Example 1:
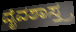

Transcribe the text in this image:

ದೈವಶಾಸ್ತ್ರ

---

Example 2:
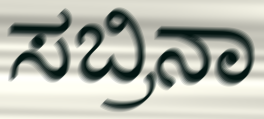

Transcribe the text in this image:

ಸಬ್ರಿನಾ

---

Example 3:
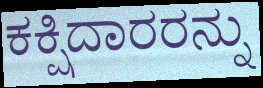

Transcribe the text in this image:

ಕಕ್ಷಿದಾರರನ್ನು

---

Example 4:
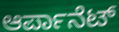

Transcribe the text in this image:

ಆರ್ಪಾನೆಟ್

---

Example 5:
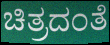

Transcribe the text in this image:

ಚಿತ್ರದಂತೆ